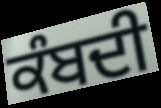
ਕੰਬਦੀ